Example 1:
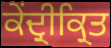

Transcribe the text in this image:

ਕੇਂਦ੍ਰੀਕ੍ਰਿਤ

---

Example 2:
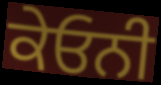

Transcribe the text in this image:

ਕੇਓਨੀ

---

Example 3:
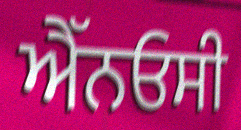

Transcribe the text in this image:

ਐੱਨਓਸੀ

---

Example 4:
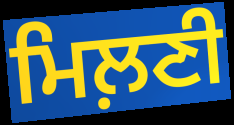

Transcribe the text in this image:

ਮਿਲ਼ਣੀ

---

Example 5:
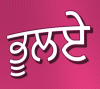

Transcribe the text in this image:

ਭੂਲਏ